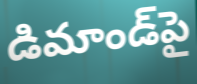
డిమాండ్‌పై